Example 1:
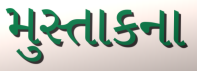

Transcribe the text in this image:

મુસ્તાકના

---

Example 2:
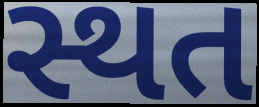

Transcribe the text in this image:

સ્થત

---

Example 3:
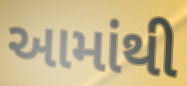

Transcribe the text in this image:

આમાંથી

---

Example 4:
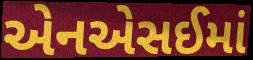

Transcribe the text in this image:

એનએસઈમાં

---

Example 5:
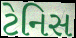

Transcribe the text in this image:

ટેનિસ